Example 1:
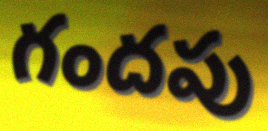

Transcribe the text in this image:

గందపు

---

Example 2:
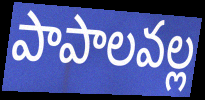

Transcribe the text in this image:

పాపాలవల్ల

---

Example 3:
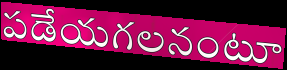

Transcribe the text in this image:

పడేయగలనంటూ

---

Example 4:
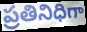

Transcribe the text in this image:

ప్రతినిధిగా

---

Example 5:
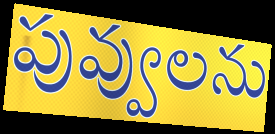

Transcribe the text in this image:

పువ్వులను